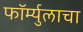
फॉर्म्युलाचा